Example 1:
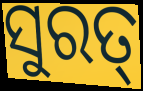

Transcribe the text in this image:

ସୁରତ୍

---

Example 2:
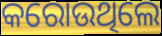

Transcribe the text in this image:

କରୋଉଥିଲେ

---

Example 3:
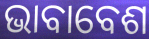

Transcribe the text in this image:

ଭାବାବେଶ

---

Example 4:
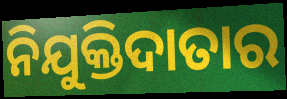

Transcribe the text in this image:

ନିଯୁକ୍ତିଦାତାର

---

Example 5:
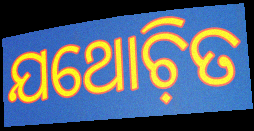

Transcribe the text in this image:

ଯଥୋଚ଼ିତ